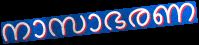
നാസാഭരണ